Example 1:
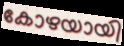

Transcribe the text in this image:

കോഴയായി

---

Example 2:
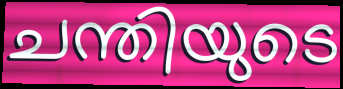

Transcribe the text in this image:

ചന്തിയുടെ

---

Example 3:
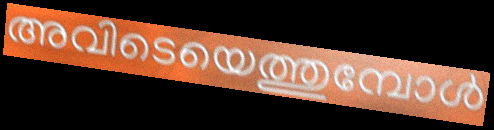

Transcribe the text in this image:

അവിടെയെത്തുമ്പോൾ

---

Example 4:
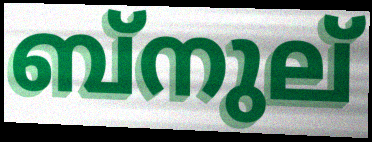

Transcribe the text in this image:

ബ്നുല്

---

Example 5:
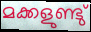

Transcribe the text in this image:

മക്കളുണ്ടു്